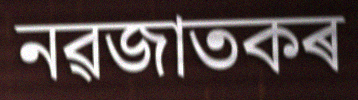
নৱজাতকৰ